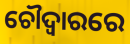
ଚୌଦ୍ୱାରରେ